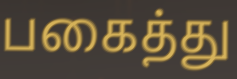
பகைத்து